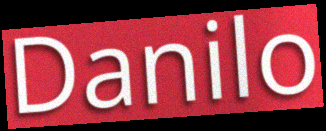
Danilo